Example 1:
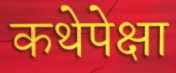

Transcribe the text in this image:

कथेपेक्षा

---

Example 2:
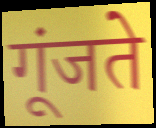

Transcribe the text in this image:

गूंजते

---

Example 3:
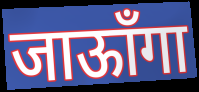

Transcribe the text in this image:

जाऊाँगा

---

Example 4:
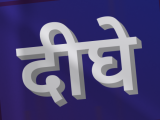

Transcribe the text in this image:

दीघे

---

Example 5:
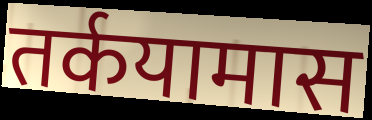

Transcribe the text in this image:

तर्कयामास